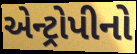
એન્ટ્રોપીનો